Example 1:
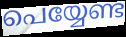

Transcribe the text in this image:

പെയ്യേണ്ട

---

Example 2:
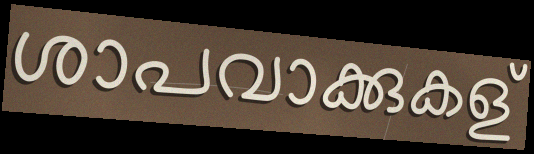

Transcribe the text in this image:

ശാപവാക്കുകള്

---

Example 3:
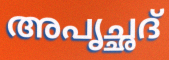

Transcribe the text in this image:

അപൃച്ഛദ്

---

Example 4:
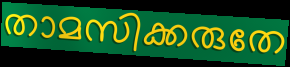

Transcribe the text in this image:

താമസിക്കരുതേ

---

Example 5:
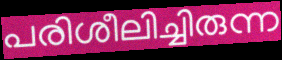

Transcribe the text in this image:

പരിശീലിച്ചിരുന്ന